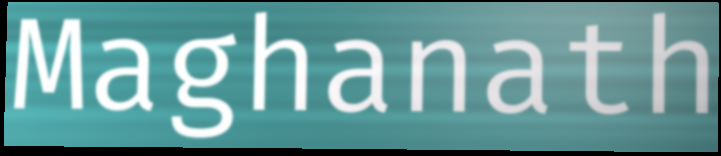
Maghanath